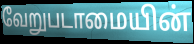
வேறுபடாமையின்